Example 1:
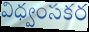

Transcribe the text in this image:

విధ్వంసకర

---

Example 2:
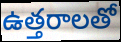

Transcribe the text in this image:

ఉత్తరాలతో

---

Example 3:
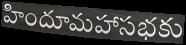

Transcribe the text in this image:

హిందూమహాసభకు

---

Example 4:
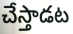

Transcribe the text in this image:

చేస్తాడట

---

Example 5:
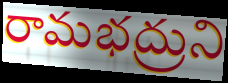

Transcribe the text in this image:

రామభద్రుని